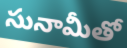
సునామీతో